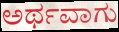
ಅರ್ಥವಾಗು